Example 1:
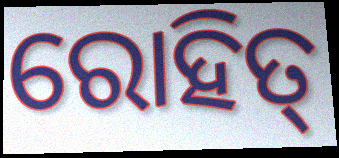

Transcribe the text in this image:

ରୋହିତ୍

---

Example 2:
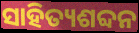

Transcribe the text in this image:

ସାହିତ୍ୟଶବ୍ଦନ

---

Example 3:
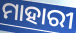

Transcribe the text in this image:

ମାହାରୀ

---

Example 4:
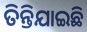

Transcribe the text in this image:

ତିନ୍ତିଯାଇଛି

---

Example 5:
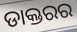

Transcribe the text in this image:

ଡାକ୍ତରର